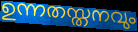
ഉന്നതസ്തനവും